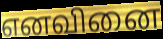
எனவினை